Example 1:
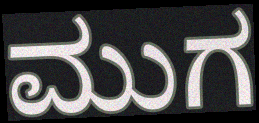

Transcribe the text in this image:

ಮುಗ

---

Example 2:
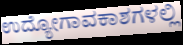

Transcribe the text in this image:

ಉದ್ಯೋಗಾವಕಾಶಗಳಲ್ಲಿ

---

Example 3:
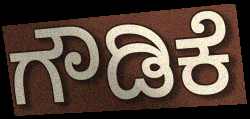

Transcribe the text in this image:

ಗೌಡಿಕೆ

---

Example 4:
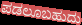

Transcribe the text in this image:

ಪಡಲೂಬಹುದು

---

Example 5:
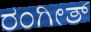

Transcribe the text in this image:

ರಂಗೀತ್